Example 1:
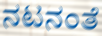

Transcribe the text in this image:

ನಟನಂತೆ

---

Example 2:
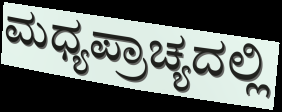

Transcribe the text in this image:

ಮಧ್ಯಪ್ರಾಚ್ಯದಲ್ಲಿ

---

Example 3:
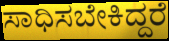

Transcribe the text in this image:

ಸಾಧಿಸಬೇಕಿದ್ದರೆ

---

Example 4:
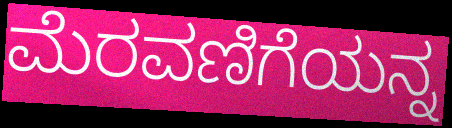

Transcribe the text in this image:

ಮೆರವಣಿಗೆಯನ್ನ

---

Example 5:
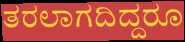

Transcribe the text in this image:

ತರಲಾಗದಿದ್ದರೂ